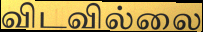
விடவில்லை